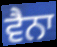
ਵੈਨਾ